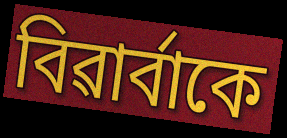
বিৱাৰ্বাকে